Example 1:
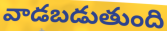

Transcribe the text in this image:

వాడబడుతుంది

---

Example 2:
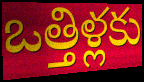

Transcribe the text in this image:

ఒత్తిళ్లకు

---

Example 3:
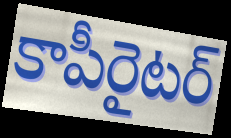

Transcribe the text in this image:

కాపీరైటర్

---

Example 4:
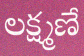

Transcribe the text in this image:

లక్ష్మణే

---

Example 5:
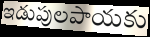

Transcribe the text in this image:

ఇడుపులపాయకు